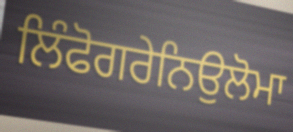
ਲਿੰਫੋਗਰੇਨਿਉਲੋਮਾ